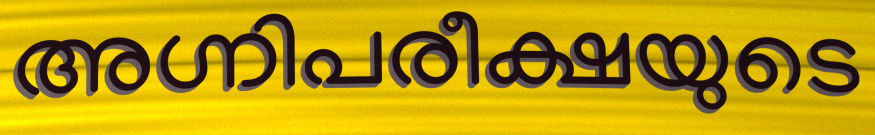
അഗ്നിപരീക്ഷയുടെ